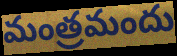
మంత్రమందు